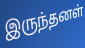
இருந்தனள்